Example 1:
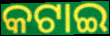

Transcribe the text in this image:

କଟାଇ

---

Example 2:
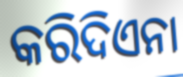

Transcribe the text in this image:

କରିଦିଏନା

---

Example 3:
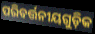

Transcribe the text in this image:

ପରିବର୍ତ୍ତନୀୟଗୁଡ଼ିକ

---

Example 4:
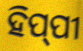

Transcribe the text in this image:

ହିପ୍‍ପୀ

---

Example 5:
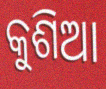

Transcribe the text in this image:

କୁଶିଆ